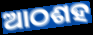
ଆଠଶହ